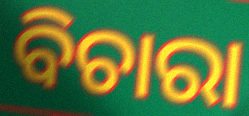
ବିଚାରା